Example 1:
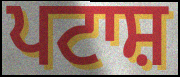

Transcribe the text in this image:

ਪਟਾਸ਼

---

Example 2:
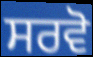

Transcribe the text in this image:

ਸਰਵੋ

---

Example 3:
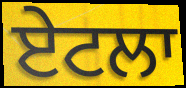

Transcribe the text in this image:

ਏਟਲਾ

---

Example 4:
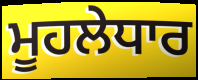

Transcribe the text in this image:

ਮੂਹਲੇਧਾਰ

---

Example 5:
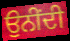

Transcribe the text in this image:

ਉਨੀਂਦੀ